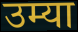
उम्या